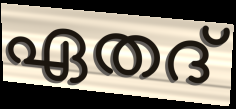
ഏതദ്